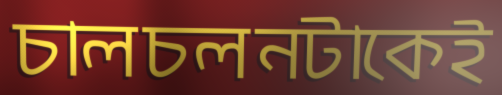
চালচলনটাকেই